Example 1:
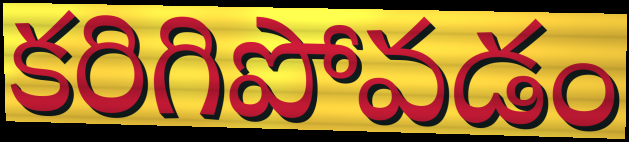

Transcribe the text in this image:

కరిగిపోవడం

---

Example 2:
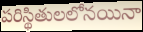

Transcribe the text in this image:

పరిస్థితులలోనయినా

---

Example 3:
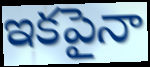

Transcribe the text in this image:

ఇకపైనా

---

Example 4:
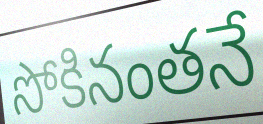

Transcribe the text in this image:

సోకినంతనే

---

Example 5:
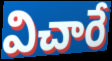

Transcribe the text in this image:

విచారే